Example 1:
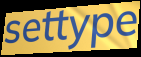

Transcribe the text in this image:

settype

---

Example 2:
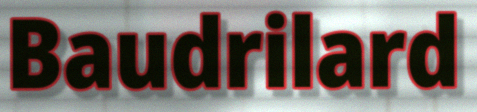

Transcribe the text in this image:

Baudrilard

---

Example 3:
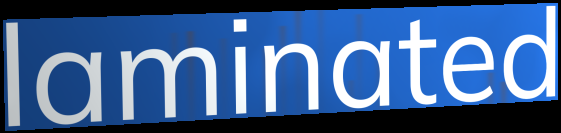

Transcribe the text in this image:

laminated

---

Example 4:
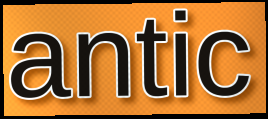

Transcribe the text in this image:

antic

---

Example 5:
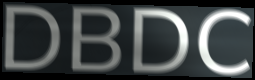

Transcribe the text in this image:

DBDC